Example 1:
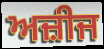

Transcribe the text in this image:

ਅਜ਼ੀਜ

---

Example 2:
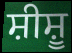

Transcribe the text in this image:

ਸ਼ੀਸ਼ੂ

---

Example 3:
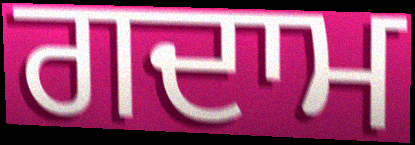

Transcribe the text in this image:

ਗਦਾਮ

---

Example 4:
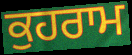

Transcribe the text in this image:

ਕੁਹਰਾਮ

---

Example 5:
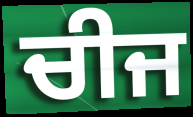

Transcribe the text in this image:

ਚੀਜ